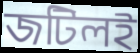
জটিলই